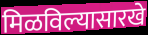
मिळविल्यासारखे